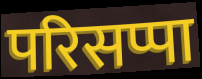
परिसप्पा